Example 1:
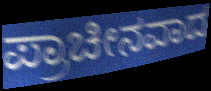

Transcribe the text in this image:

ಪ್ರಾಚೀನವಾದ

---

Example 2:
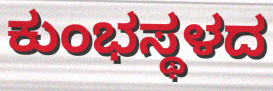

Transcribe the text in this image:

ಕುಂಭಸ್ಥಳದ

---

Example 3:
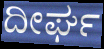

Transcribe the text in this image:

ದೀರ್ಘ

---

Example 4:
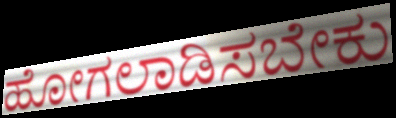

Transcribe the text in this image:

ಹೋಗಲಾಡಿಸಬೇಕು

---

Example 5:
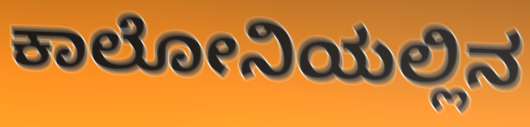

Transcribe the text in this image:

ಕಾಲೋನಿಯಲ್ಲಿನ